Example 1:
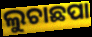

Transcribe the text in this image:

ଲୁଚାଛପା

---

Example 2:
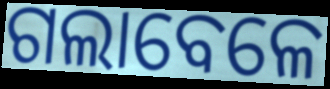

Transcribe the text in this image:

ଗଲାବେଳେ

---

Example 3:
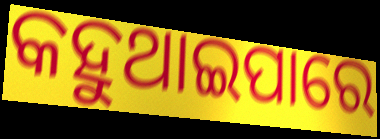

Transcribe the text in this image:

କହୁଥାଇପାରେ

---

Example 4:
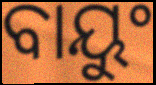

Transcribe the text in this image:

ବାୟୁଂ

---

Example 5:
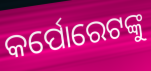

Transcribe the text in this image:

କର୍ପୋରେଟଙ୍କୁ